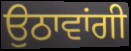
ਉਠਾਵਾਂਗੀ